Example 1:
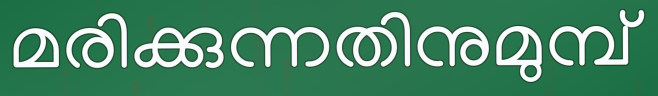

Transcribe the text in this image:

മരിക്കുന്നതിനുമുമ്പ്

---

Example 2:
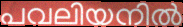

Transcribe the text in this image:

പവലിയനിൽ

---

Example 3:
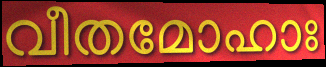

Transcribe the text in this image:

വീതമോഹാഃ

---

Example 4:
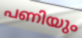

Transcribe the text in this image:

പണിയും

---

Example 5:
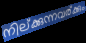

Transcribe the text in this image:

നില്ക്കുന്നവര്ക്കും